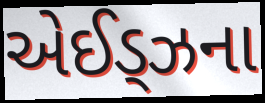
એઈડ્ઝના